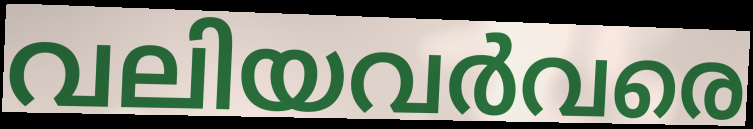
വലിയവർവരെ